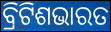
ବ୍ରିଟିଶଭାରତ